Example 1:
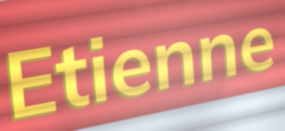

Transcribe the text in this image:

Etienne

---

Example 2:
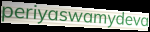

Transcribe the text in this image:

periyaswamydeva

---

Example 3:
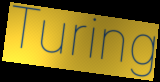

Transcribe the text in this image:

Turing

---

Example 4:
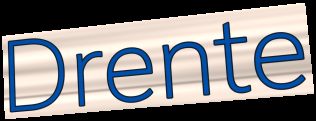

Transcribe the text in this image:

Drente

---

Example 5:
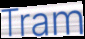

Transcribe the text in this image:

Tram